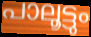
പാലൂട്ടും